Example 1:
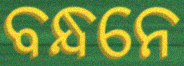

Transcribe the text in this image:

ବନ୍ଧନେ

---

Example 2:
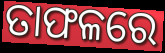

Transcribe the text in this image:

ତାଫଳରେ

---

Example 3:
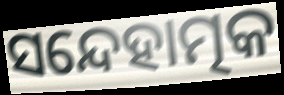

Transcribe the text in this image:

ସନ୍ଦେହାତ୍ମକ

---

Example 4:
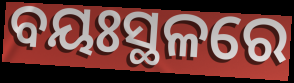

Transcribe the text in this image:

ବୟଃସ୍ଥଳରେ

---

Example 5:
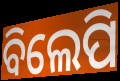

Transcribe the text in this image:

ବିଲେପି